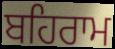
ਬਹਿਰਾਮ